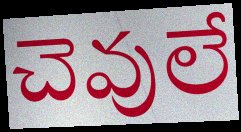
చెవులే